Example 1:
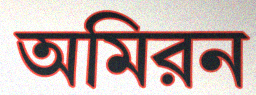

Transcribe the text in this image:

অমিরন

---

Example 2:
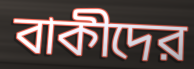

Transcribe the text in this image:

বাকীদের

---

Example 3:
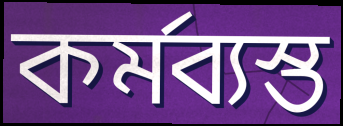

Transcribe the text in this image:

কর্মব্যস্ত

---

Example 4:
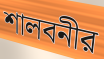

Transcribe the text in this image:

শালবনীর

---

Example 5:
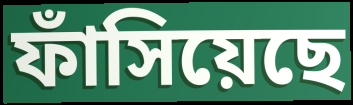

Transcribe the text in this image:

ফাঁসিয়েছে